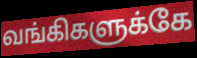
வங்கிகளுக்கே